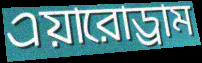
এয়ারোড্রাম